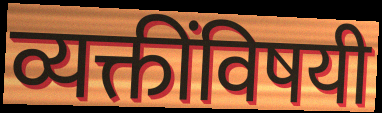
व्यक्तींविषयी